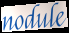
nodule